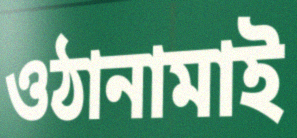
ওঠানামাই